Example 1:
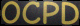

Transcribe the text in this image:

OCPD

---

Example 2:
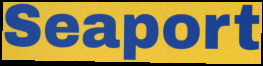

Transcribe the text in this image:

Seaport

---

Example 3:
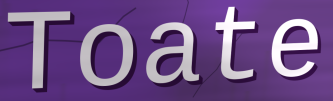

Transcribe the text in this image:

Toate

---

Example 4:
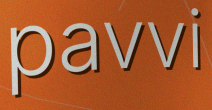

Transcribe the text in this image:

pavvi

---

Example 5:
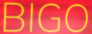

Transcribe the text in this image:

BIGO